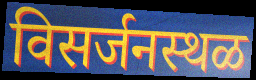
विसर्जनस्थळ